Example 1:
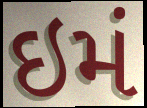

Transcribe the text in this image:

ઇમં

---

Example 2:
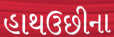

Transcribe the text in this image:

હાથઉછીના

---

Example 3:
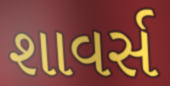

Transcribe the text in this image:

શાવર્સ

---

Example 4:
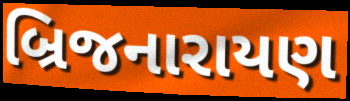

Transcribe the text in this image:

બ્રિજનારાયણ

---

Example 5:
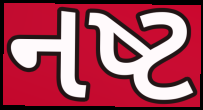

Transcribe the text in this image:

નષ્ટ